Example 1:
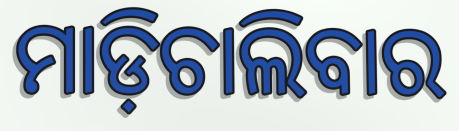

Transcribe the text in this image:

ମାଡ଼ିଚାଲିବାର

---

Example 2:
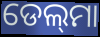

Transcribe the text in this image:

ଡେଲ୍‍ମା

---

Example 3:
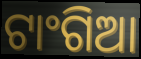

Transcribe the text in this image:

ଟାଂଗିଆ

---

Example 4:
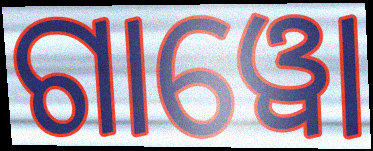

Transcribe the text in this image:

ଗାୱୋ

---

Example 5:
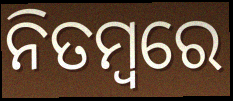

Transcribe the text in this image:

ନିତମ୍ୱରେ